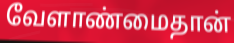
வேளாண்மைதான்